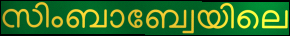
സിംബാബ്വേയിലെ